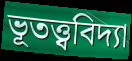
ভূতত্ত্ববিদ্যা